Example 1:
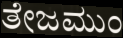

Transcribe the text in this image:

ತೇಜಮುಂ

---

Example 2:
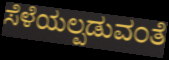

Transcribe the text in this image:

ಸೆಳೆಯಲ್ಪಡುವಂತೆ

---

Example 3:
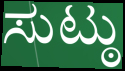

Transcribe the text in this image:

ಸುಟ್ಠು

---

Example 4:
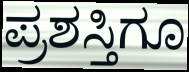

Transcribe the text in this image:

ಪ್ರಶಸ್ತಿಗೂ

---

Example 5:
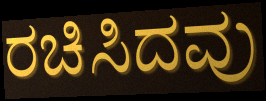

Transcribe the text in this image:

ರಚಿಸಿದವು